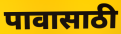
पावासाठी